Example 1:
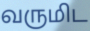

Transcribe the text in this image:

வருமிட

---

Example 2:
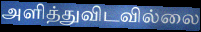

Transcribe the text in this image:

அளித்துவிடவில்லை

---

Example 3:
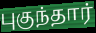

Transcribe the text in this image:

புகுந்தார்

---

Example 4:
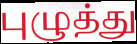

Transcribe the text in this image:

புழுத்து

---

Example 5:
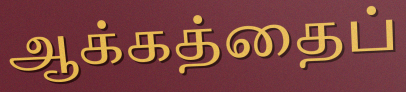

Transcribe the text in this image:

ஆக்கத்தைப்